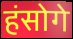
हंसोगे